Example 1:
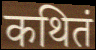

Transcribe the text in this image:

कथितं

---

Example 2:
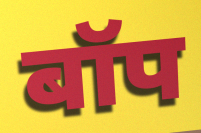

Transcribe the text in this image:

बॉप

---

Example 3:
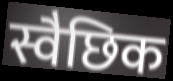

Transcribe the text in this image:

स्वैछिक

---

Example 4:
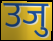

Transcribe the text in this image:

उजु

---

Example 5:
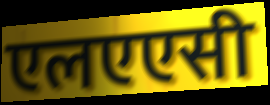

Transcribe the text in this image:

एलएएसी